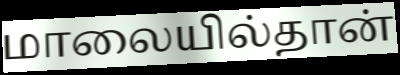
மாலையில்தான்